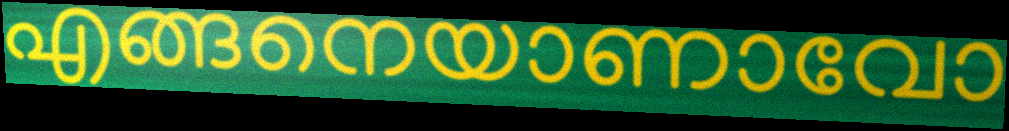
എങ്ങനെയാണാവോ